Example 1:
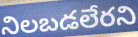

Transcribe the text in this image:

నిలబడలేరని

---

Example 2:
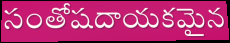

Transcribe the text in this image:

సంతోషదాయకమైన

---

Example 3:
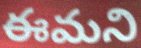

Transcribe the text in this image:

ఈమని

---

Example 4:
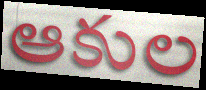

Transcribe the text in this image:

ఆకుల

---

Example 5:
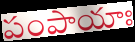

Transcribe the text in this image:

పంపాయాః